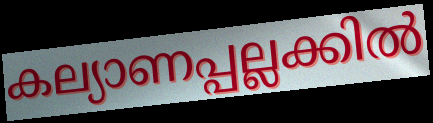
കല്യാണപ്പല്ലക്കിൽ